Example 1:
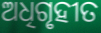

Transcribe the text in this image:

ଅଧିଗୃହୀତ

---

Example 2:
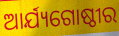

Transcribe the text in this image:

ଆର୍ଯ୍ୟଗୋଷ୍ଠୀର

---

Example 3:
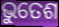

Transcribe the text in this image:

ଭୁତେଶ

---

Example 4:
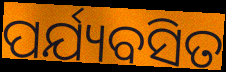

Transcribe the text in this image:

ପର୍ଯ୍ୟବସିତ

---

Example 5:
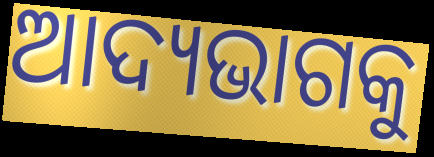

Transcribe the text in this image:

ଆଦ୍ୟଭାଗକୁ